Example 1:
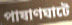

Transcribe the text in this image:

পাষাণঘাটে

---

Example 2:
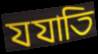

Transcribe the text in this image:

যযাতি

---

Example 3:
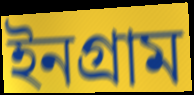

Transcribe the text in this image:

ইনগ্রাম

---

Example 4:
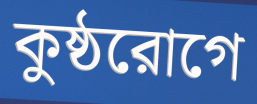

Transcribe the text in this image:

কুষ্ঠরোগে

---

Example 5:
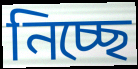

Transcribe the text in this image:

নিচ্ছে